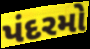
પંદરમો